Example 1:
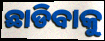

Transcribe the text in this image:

ଛାଡିବାକୁ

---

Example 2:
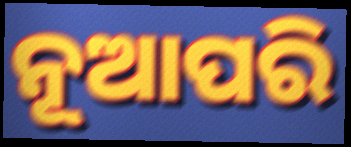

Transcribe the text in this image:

ନୂଆପରି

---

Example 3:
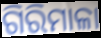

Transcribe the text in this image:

ଗିରିମାଳା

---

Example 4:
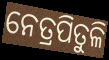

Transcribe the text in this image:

ନେତ୍ରପିତୁଳି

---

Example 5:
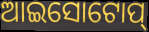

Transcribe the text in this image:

ଆଇସୋଟୋପ୍